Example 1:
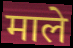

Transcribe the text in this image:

माले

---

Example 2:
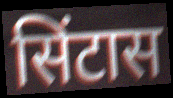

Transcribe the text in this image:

सिंटास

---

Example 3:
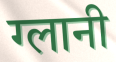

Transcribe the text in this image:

ग्लानी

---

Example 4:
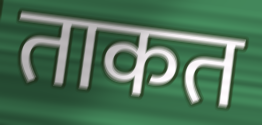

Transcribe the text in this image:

ताकत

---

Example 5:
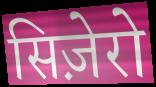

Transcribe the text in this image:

सिज़ेरो